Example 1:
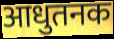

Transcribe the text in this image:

आधुतनक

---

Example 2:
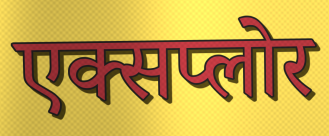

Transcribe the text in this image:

एक्सप्लोर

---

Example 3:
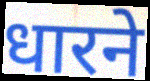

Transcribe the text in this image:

धारने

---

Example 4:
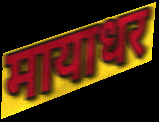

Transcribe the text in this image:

मायाधर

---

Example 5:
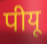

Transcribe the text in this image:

पीयू